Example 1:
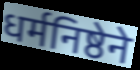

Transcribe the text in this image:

धर्मनिष्ठेने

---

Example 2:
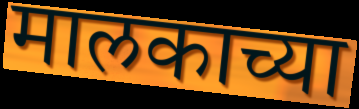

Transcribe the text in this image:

मालकाच्या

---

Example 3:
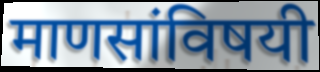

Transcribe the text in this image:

माणसांविषयी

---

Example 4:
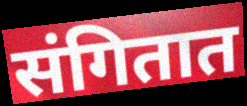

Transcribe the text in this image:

संगितात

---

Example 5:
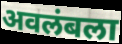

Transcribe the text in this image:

अवलंबला